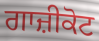
ਗਾਜ਼ੀਕੋਟ